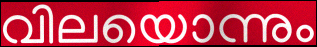
വിലയൊന്നും